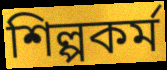
শিল্পকৰ্ম